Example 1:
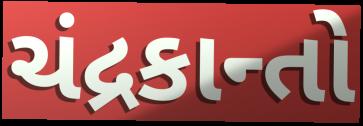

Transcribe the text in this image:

ચંદ્રકાન્તો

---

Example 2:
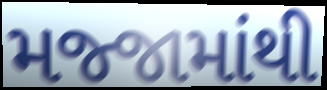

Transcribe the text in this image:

મજ્જામાંથી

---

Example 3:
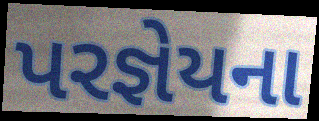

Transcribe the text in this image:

પરજ્ઞેયના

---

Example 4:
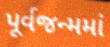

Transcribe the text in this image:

પૂર્વજન્મમાં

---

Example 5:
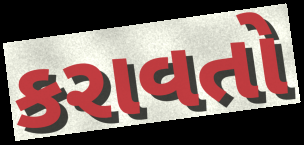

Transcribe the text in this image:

કરાવતો